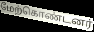
மேற்கொண்டனர்